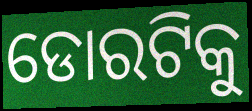
ଡୋରଟିକୁ